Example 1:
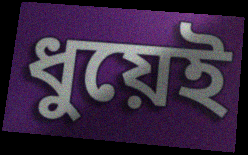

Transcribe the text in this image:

ধুয়েই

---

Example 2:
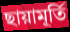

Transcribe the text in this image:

ছায়ামূর্তি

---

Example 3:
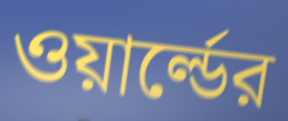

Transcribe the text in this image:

ওয়ার্ল্ডের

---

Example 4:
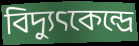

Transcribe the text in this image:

বিদ্যুৎকেন্দ্রে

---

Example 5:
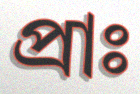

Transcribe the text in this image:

প্রাঃ